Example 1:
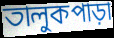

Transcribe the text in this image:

তালুকপাড়া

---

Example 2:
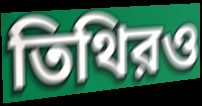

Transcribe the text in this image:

তিথিরও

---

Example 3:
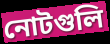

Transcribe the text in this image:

নোটগুলি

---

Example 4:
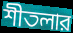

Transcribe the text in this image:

শীতলার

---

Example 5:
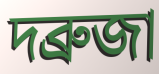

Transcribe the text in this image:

দব্রুজা